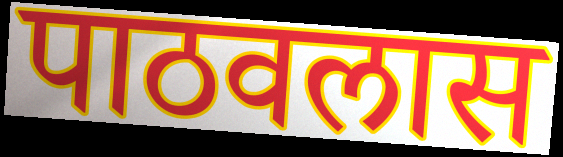
पाठवलास